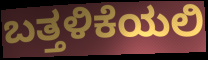
ಬತ್ತಳಿಕೆಯಲಿ